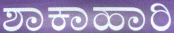
ಶಾಕಾಹಾರಿ